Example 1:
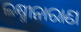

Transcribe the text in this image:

ଲକ୍ଷ୍ମୀନାରାଣ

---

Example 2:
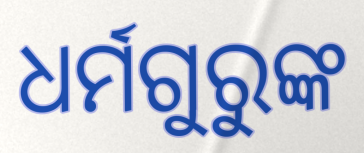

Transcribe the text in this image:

ଧର୍ମଗୁରୁଙ୍କ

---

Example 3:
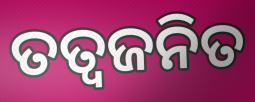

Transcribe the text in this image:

ତତ୍ଵଜନିତ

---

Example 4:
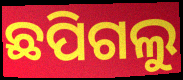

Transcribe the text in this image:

ଛପିଗଲୁ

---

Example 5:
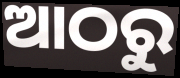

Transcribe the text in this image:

ଆଠରୁ